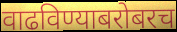
वाढविण्याबरोबरच